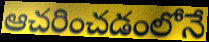
ఆచరించడంలోనే